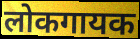
लोकगायक